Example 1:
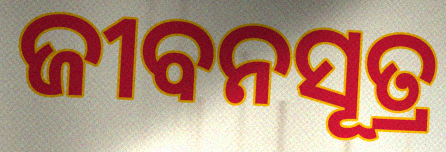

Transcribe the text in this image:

ଜୀବନସୂତ୍ର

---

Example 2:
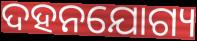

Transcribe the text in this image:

ଦହନଯୋଗ୍ୟ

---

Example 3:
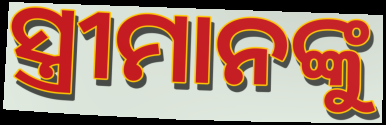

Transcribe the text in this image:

ସ୍ତ୍ରୀମାନଙ୍କୁ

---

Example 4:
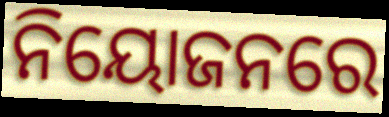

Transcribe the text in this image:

ନିୟୋଜନରେ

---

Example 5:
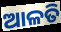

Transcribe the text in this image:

ଆଳତି